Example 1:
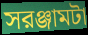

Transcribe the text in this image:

সরঞ্জামটা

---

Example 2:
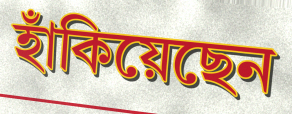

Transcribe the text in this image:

হাঁকিয়েছেন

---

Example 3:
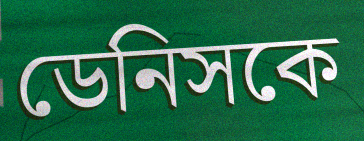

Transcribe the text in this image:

ডেনিসকে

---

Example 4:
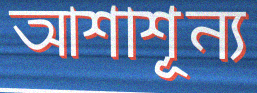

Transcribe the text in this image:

আশাশূন্য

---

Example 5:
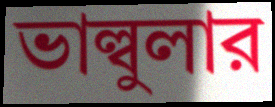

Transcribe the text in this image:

ভাল্বুলার